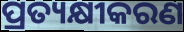
ପ୍ରତ୍ୟକ୍ଷୀକରଣ